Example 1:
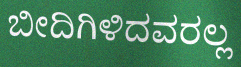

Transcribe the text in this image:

ಬೀದಿಗಿಳಿದವರಲ್ಲ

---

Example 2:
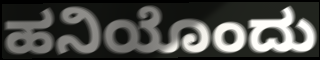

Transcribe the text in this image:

ಹನಿಯೊಂದು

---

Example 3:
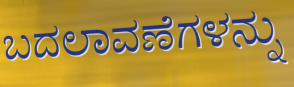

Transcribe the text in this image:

ಬದಲಾವಣೆಗಳನ್ನು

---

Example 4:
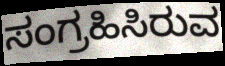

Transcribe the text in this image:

ಸಂಗ್ರಹಿಸಿರುವ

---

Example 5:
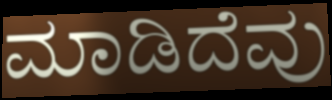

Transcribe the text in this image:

ಮಾಡಿದೆವು